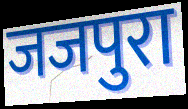
जजपुरा